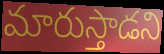
మారుస్తాడని